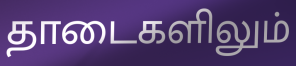
தாடைகளிலும்